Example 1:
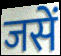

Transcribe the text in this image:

जसें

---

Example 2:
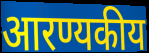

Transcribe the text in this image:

आरण्यकीय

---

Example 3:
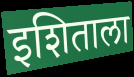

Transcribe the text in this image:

इशिताला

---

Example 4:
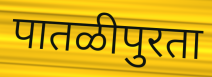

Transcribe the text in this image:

पातळीपुरता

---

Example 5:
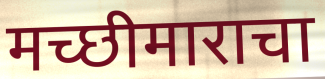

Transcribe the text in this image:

मच्छीमाराचा